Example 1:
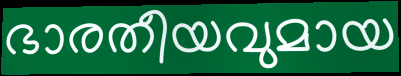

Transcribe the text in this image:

ഭാരതീയവുമായ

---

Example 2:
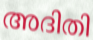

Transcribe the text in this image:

അദിതി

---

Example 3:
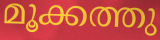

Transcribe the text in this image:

മൂക്കത്തു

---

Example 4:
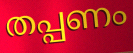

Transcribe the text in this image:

തപ്പണം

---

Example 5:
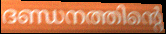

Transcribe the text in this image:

ദണ്ഡനത്തിന്റെ